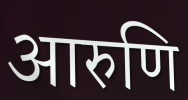
आरुणि